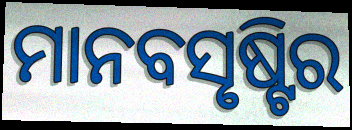
ମାନବସୃଷ୍ଟିର